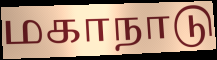
மகாநாடு